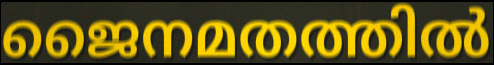
ജൈനമതത്തിൽ